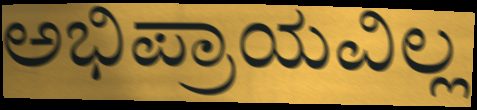
ಅಭಿಪ್ರಾಯವಿಲ್ಲ